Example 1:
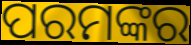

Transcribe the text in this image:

ପରମଙ୍କର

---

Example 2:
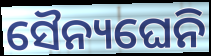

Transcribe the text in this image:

ସୈନ୍ୟଘେନି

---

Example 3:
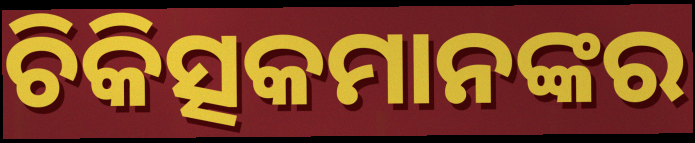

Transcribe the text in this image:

ଚିକିତ୍ସକମାନଙ୍କର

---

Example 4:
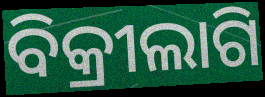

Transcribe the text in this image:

ବିକ୍ରୀଲାଗି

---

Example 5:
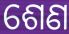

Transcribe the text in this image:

ଶେଣ